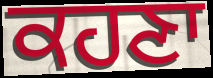
ਕਹਣਾ